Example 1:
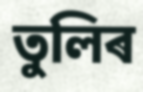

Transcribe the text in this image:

তুলিৰ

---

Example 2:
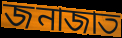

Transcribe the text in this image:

জনাজাত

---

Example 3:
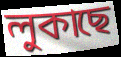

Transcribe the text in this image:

লুকাছে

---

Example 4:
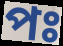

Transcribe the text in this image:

পঃ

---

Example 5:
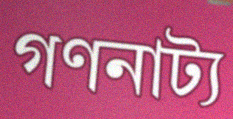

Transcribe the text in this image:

গণনাট্য